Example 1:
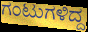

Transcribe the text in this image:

ಗಂಟುಗಳಿದ್ದ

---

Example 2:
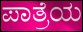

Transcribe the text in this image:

ಪಾತ್ರೆಯ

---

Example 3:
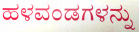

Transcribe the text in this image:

ಹಳವಂಡಗಳನ್ನು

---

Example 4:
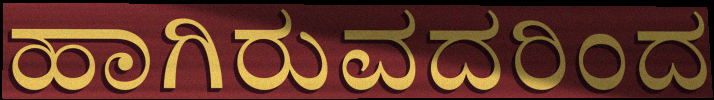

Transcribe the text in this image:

ಹಾಗಿರುವದರಿಂದ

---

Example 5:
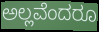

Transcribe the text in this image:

ಅಲ್ಲವೆಂದರೂ